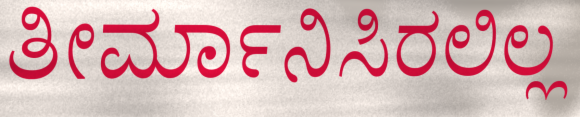
ತೀರ್ಮಾನಿಸಿರಲಿಲ್ಲ